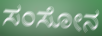
ಸಂಸೋನ